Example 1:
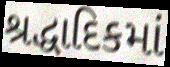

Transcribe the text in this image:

શ્રદ્ધાદિકમાં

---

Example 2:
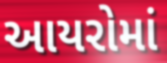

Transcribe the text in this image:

આયરોમાં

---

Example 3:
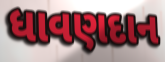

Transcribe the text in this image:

ધાવણદાન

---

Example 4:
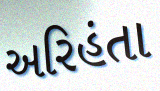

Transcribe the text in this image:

અરિહંતા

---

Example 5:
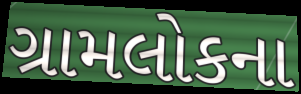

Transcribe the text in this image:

ગ્રામલોકના